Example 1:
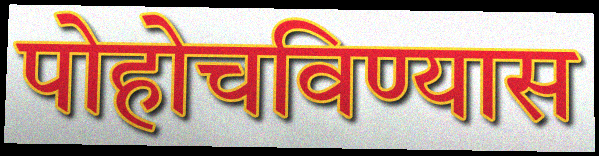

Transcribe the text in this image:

पोहोचविण्यास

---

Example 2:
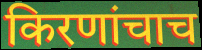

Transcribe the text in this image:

किरणांचाच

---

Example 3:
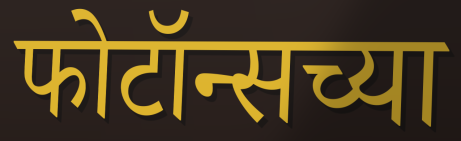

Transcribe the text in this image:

फोटॉन्सच्या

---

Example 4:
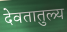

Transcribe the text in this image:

देवतातुल्य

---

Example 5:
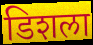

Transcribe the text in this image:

डिशला